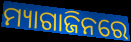
ମ୍ୟାଗାଜିନରେ